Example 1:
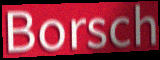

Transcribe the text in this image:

Borsch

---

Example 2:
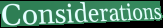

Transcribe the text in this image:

Considerations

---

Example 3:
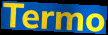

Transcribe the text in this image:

Termo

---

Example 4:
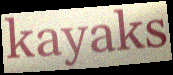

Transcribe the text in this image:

kayaks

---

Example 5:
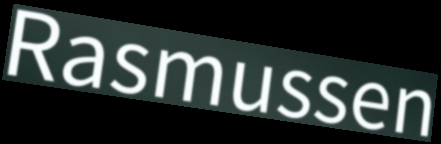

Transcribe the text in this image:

Rasmussen